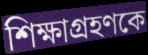
শিক্ষাগ্রহণকে